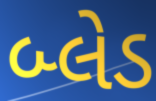
બ્લેડ